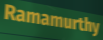
Ramamurthy